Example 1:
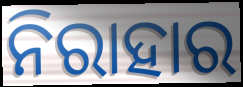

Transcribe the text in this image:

ନିରାହାର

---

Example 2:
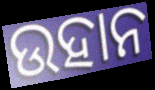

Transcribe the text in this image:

ଉହାନ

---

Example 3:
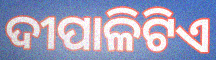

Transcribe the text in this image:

ଦୀପାଳିଟିଏ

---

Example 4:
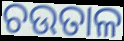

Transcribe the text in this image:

ଚଉତାଳ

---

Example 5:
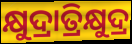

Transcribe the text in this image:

କ୍ଷୁଦ୍ରାତ୍ରିକ୍ଷୁଦ୍ର